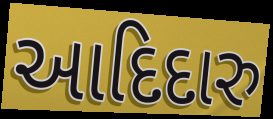
આદિદારુ